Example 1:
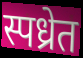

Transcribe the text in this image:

स्पध्रेत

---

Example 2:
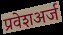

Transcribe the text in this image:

प्रवेशअर्ज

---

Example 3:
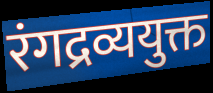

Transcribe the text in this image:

रंगद्रव्ययुक्त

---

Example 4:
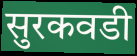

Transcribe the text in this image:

सुरकवडी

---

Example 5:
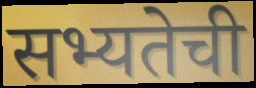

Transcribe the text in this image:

सभ्यतेची